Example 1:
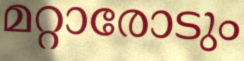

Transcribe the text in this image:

മറ്റാരോടും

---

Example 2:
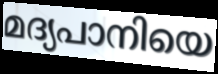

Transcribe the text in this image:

മദ്യപാനിയെ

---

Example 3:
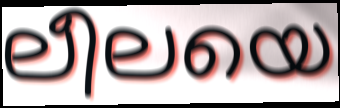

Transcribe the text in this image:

ലീലയെ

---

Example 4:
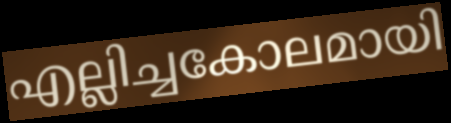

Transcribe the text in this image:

എല്ലിച്ചകോലമായി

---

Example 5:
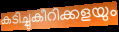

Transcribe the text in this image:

കടിച്ചുകീറിക്കളയും